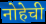
नोहेची